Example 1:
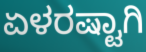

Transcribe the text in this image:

ಏಳರಷ್ಟಾಗಿ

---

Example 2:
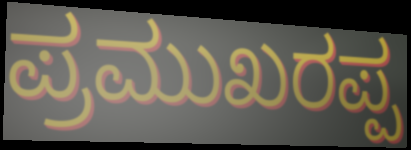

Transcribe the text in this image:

ಪ್ರಮುಖರಪ್ಪ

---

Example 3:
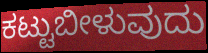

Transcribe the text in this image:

ಕಟ್ಟುಬೀಳುವುದು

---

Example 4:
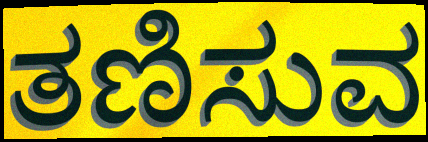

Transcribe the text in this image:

ತಣಿಸುವ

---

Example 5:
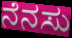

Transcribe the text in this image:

ನೆನಸು